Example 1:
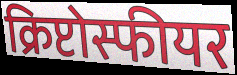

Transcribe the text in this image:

क्रिप्टोस्फीयर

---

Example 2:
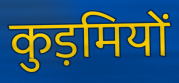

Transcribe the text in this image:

कुड़मियों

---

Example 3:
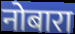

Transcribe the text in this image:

नोबारा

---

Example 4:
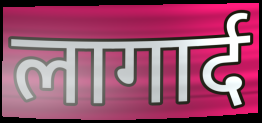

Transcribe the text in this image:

लागार्द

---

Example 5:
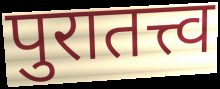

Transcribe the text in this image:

पुरातत्त्व